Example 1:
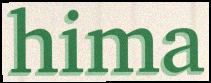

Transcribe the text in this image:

hima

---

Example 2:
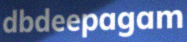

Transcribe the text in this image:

dbdeepagam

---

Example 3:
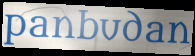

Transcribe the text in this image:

panbudan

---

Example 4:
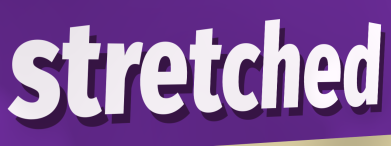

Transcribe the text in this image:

stretched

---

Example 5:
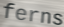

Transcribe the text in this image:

ferns